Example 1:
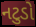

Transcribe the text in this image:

નટુડો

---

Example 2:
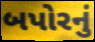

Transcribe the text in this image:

બપોરનું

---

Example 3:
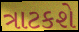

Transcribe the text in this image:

ત્રાટકશે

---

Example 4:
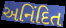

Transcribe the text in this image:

અનિંદિત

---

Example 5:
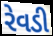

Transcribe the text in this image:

રેવડી